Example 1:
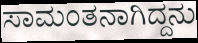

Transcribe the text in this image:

ಸಾಮಂತನಾಗಿದ್ದನು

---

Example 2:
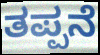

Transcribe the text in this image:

ತಪ್ಪನೆ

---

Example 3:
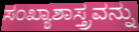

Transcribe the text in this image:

ಸಂಖ್ಯಾಶಾಸ್ತ್ರವನ್ನು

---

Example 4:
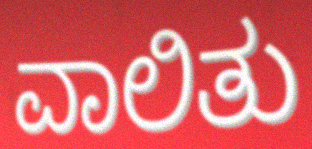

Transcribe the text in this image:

ವಾಲಿತು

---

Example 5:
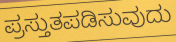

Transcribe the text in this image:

ಪ್ರಸ್ತುತಪಡಿಸುವುದು